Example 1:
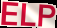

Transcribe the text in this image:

ELP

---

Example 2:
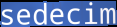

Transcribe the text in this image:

sedecim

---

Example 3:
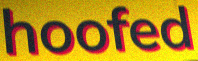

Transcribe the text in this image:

hoofed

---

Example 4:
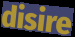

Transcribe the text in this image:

disire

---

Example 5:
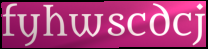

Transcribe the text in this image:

fyhwscdcj